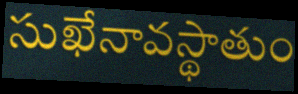
సుఖేనావస్థాతుం